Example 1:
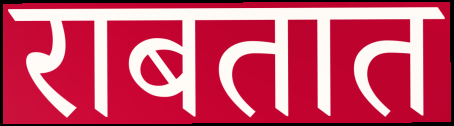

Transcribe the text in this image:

राबतात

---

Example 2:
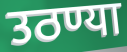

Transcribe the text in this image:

उठण्या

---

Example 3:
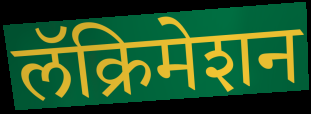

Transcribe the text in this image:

लॅक्रिमेशन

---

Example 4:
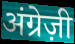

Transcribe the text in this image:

अंग्रेज़ी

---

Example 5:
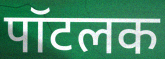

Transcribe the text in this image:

पॉटलक